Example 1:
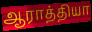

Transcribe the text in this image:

ஆராத்தியா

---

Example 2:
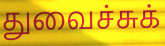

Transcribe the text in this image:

துவைச்சுக்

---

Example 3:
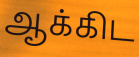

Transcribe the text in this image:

ஆக்கிட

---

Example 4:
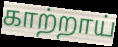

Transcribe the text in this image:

காற்றாய்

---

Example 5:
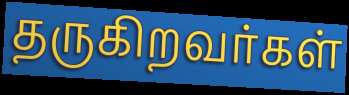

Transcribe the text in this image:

தருகிறவர்கள்